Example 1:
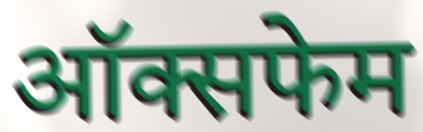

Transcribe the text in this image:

ऑक्सफेम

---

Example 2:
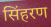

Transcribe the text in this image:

सिंहरण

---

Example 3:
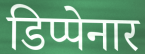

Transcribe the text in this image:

डिप्पेनार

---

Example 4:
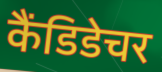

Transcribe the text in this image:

कैंडिडेचर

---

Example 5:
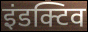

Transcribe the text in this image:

इंडक्टिव